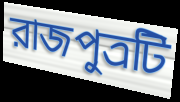
রাজপুত্রটি